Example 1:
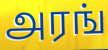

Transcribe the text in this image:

அரங்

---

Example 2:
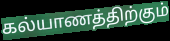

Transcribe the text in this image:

கல்யாணத்திற்கும்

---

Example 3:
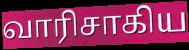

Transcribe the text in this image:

வாரிசாகிய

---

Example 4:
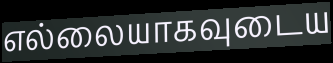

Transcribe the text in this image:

எல்லையாகவுடைய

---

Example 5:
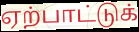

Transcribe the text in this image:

ஏற்பாட்டுக்